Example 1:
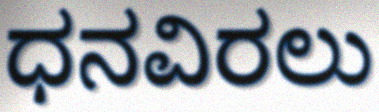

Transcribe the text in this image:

ಧನವಿರಲು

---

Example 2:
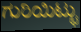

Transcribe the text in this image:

ಗುರಿಯಿಟ್ಟು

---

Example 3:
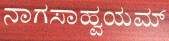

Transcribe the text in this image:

ನಾಗಸಾಹ್ವಯಮ್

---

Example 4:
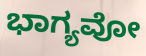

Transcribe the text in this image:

ಭಾಗ್ಯವೋ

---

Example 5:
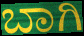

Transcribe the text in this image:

ಬಾಗಿ